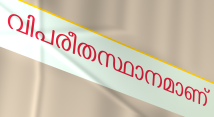
വിപരീതസ്ഥാനമാണ്